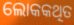
ଲୋକକଥିତ